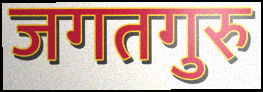
जगतगुरु